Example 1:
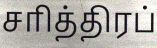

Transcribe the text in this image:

சரித்திரப்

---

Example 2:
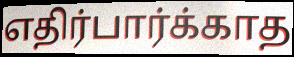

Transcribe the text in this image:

எதிர்பார்க்காத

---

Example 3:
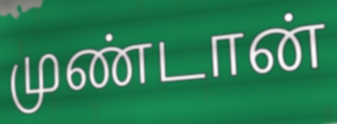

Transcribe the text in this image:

முண்டான்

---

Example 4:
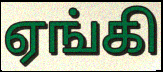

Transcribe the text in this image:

ஏங்கி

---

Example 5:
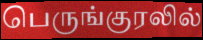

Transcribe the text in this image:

பெருங்குரலில்